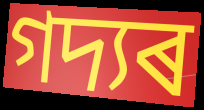
গদ্যৰ